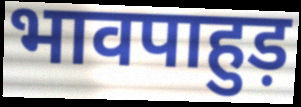
भावपाहुड़